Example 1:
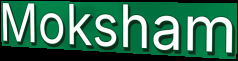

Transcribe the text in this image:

Moksham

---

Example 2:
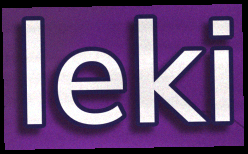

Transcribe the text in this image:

leki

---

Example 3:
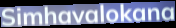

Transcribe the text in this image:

Simhavalokana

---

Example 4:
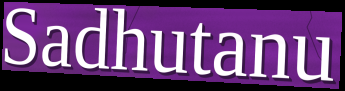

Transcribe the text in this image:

Sadhutanu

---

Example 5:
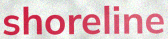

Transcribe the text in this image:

shoreline